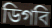
ডিগবি